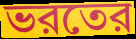
ভরতের